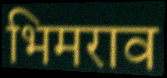
भिमराव